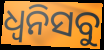
ଧ୍ୱନିସବୁ